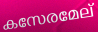
കസേരമേല്